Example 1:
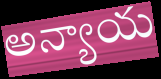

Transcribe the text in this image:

అన్యాయ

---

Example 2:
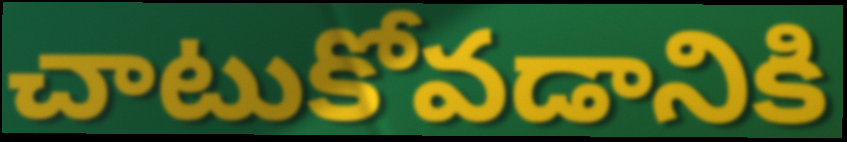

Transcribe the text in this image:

చాటుకోవడానికి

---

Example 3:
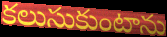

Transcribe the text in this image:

కలుసుకుంటాను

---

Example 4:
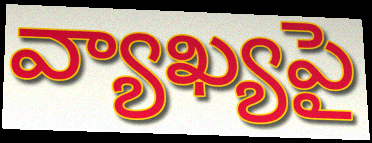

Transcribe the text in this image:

వ్యాఖ్యపై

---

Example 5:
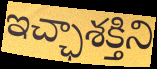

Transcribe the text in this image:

ఇచ్ఛాశక్తిని